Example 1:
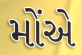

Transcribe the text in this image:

મોંએ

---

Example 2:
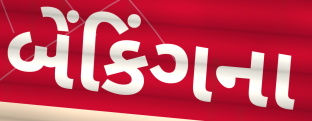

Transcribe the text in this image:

બેંકિંગના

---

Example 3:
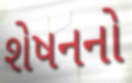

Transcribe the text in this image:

શેષનનો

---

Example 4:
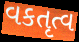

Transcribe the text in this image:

વકતૃત્વ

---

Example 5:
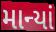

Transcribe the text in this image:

માન્યાં